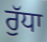
ਰੁੱਧਾ